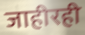
जाहीरही